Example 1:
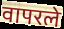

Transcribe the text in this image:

वापरले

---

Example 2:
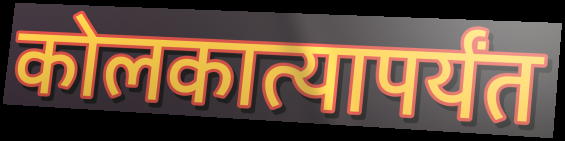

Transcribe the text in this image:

कोलकात्यापर्यंत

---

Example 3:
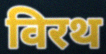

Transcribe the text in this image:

विरथ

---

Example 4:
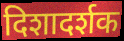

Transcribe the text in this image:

दिशादर्शक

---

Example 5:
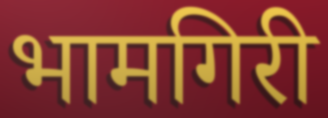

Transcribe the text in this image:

भामगिरी